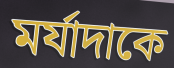
মর্যাদাকে